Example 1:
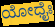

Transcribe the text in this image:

ಯೋಧೈಃ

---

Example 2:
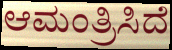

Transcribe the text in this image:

ಆಮಂತ್ರಿಸಿದೆ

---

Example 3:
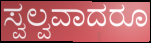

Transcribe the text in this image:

ಸ್ವಲ್ವವಾದರೂ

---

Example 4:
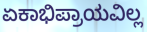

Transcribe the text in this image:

ಏಕಾಭಿಪ್ರಾಯವಿಲ್ಲ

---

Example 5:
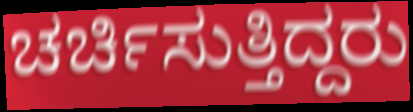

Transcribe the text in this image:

ಚರ್ಚಿಸುತ್ತಿದ್ದರು